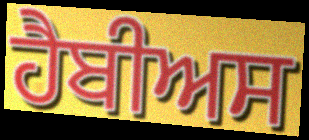
ਹੈਬੀਅਸ